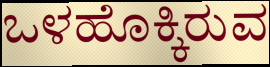
ಒಳಹೊಕ್ಕಿರುವ